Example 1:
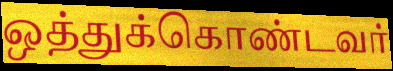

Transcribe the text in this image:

ஒத்துக்கொண்டவர்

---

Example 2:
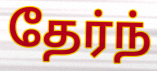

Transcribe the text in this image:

தேர்ந்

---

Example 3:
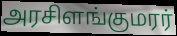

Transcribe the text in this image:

அரசிளங்குமரர்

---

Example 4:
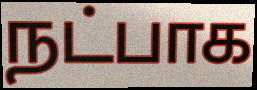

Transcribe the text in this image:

நட்பாக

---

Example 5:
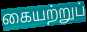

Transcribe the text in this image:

கையற்றுப்